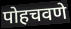
पोहचवणे